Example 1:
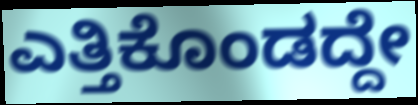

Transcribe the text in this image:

ಎತ್ತಿಕೊಂಡದ್ದೇ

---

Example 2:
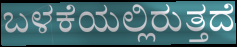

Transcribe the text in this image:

ಬಳಕೆಯಲ್ಲಿರುತ್ತದೆ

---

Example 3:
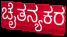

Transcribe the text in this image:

ಚೈತನ್ಯಕರ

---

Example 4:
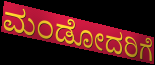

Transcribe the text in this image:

ಮಂಡೋದರಿಗೆ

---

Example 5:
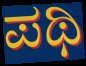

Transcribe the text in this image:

ಪಥಿ